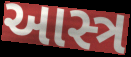
આસ્ત્ર